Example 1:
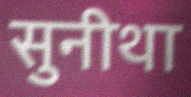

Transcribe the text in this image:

सुनीथा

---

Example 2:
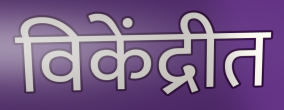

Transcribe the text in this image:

विकेंद्रीत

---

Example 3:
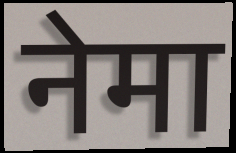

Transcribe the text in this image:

नेमा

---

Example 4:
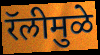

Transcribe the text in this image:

रॅलीमुळे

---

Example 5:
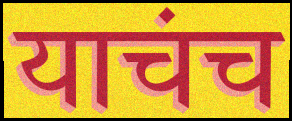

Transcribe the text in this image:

याचंच